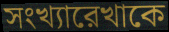
সংখ্যারেখাকে